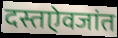
दस्तऐवजांत